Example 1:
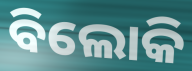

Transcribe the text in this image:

ବିଲୋକି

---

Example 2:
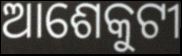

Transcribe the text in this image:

ଆଶେକୁଟୀ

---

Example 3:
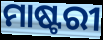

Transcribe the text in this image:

ମାଷ୍ଟରୀ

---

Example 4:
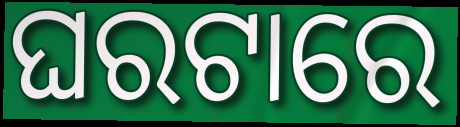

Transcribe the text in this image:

ଘରଟାରେ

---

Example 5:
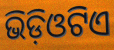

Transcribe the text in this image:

ଭିଡ଼ିଓଟିଏ